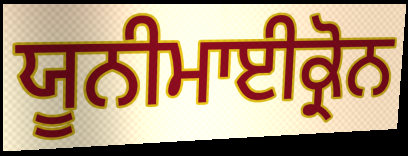
ਯੂਨੀਮਾਈਕ੍ਰੋਨ